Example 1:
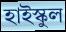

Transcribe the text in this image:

হাইস্কুল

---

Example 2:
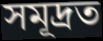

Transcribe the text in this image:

সমূদ্ৰত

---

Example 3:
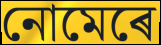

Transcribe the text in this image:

নোমেৰে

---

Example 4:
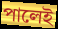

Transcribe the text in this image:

পালেই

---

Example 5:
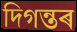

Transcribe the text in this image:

দিগন্তৰ